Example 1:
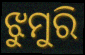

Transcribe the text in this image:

ଝୁମୁରି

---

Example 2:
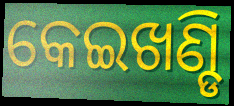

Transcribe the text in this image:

କେଇଖଣ୍ଡି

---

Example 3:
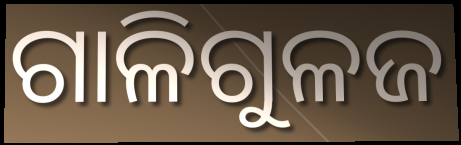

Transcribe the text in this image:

ଗାଳିଗୁଳଜ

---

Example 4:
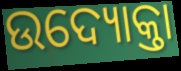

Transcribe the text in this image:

ଉଦ୍ୟୋକ୍ତା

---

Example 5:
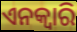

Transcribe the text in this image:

ଏନକ୍ଵାରି